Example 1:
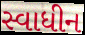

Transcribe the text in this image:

સ્વાધીન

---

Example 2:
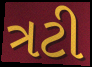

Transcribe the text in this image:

ત્રટી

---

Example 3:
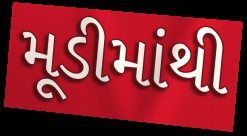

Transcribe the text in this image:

મૂડીમાંથી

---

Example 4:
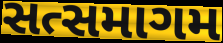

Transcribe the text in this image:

સત્સમાગમ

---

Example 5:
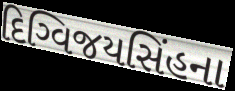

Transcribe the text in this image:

દિગ્વિજયસિંહના